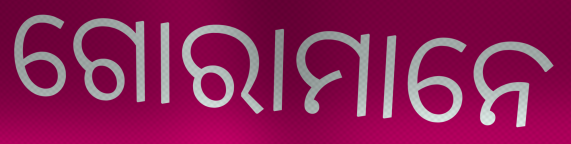
ଗୋରାମାନେ